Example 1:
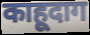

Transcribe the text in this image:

काहूदाग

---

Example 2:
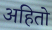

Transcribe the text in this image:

अहितो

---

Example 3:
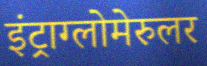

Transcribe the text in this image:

इंट्राग्लोमेरुलर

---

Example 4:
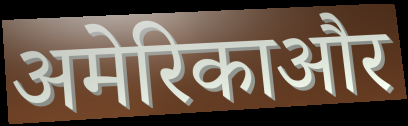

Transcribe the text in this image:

अमेरिकाऔर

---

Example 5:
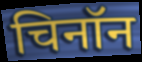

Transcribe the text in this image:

चिनॉन